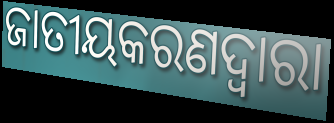
ଜାତୀୟକରଣଦ୍ୱାରା